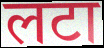
लटा